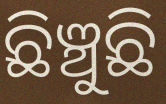
ଛିଞ୍ଚୁଛି